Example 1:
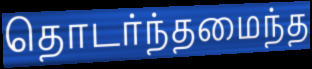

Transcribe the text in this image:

தொடர்ந்தமைந்த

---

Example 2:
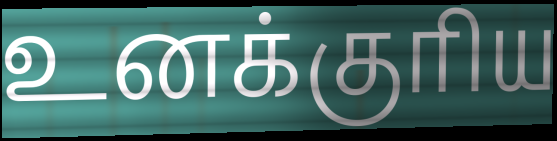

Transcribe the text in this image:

உனக்குரிய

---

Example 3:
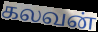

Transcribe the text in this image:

கலவன்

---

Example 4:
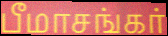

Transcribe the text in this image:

பீமாசங்கர்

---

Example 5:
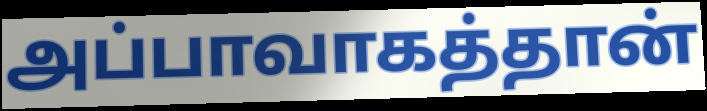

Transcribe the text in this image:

அப்பாவாகத்தான்